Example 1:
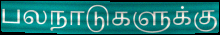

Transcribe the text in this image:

பலநாடுகளுக்கு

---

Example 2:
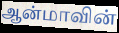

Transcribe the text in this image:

ஆன்மாவின்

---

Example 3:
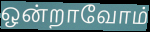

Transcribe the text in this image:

ஒன்றாவோம்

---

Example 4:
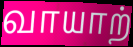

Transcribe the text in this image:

வாயாற்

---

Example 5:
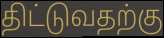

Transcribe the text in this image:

திட்டுவதற்கு